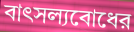
বাৎসল্যবোধের